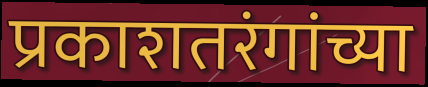
प्रकाशतरंगांच्या